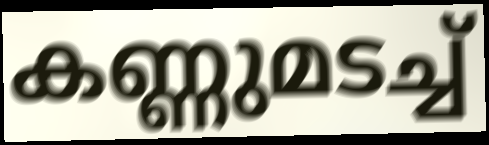
കണ്ണുമടച്ച്